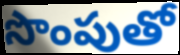
సొంపుతో